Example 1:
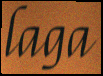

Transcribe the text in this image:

laga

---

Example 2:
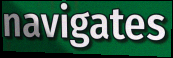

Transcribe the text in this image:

navigates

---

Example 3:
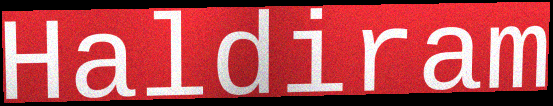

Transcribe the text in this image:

Haldiram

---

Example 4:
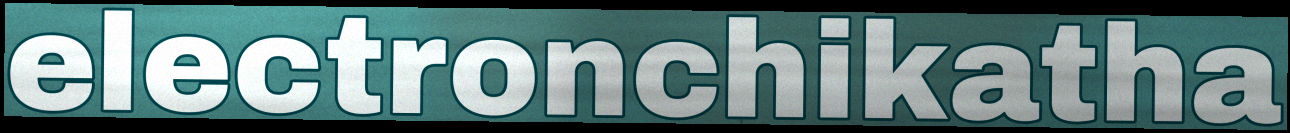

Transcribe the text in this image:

electronchikatha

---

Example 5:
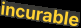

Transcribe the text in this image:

incurable